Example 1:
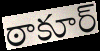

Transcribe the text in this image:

ఠాకూర్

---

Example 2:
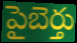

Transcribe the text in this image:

పైబెర్తు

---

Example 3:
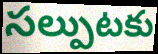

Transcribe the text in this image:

సల్పుటకు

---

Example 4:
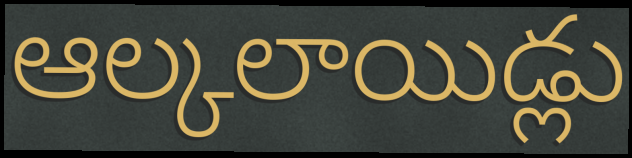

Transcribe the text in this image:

ఆల్కలాయిడ్లు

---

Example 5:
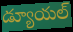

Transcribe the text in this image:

డ్యూయల్